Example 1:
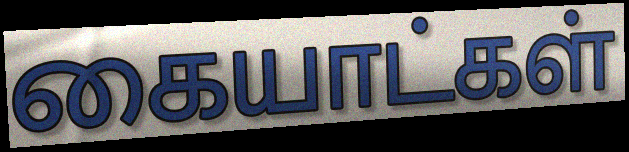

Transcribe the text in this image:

கையாட்கள்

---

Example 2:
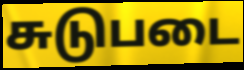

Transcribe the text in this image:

சுடுபடை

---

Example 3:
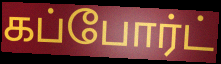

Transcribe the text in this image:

கப்போர்ட்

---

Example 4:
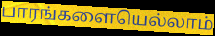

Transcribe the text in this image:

பாரங்களையெல்லாம்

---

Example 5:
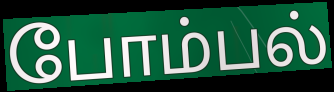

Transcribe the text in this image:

போம்பல்